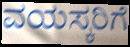
ವಯಸ್ಕರಿಗೆ